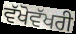
ਵੱਖੋਵੱਖਰੀ